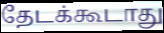
தேடக்கூடாது